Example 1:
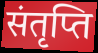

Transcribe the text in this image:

संतृप्ति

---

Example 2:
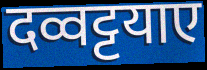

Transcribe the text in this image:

दव्वट्टयाए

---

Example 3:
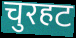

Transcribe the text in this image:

चुरहट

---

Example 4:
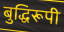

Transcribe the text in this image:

बुद्धिरूपी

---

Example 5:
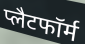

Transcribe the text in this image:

प्लैटफॉर्म